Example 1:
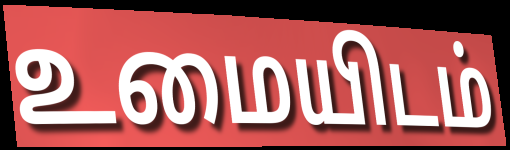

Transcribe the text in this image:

உமையிடம்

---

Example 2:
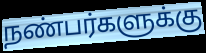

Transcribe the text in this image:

நண்பர்களுக்கு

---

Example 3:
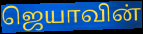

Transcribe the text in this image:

ஜெயாவின்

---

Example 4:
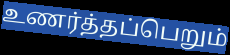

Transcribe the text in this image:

உணர்த்தப்பெறும்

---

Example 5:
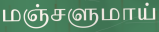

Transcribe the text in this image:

மஞ்சளுமாய்